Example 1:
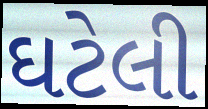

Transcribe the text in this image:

ઘટેલી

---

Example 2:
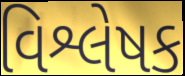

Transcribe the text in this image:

વિશ્લેષક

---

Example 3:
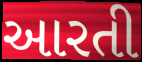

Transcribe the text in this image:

આરતી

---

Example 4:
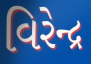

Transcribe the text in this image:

વિરેન્દ્ર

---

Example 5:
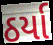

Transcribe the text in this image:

ઠર્યા